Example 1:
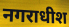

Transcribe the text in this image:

नगराधीश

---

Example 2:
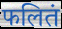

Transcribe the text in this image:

फलितं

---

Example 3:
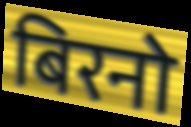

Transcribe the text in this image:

बिरनो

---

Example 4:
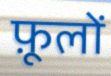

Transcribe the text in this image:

फ़ूलों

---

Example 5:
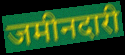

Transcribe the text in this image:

जमीनदारी